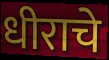
धीराचे